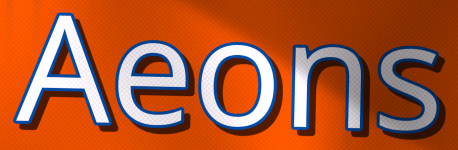
Aeons